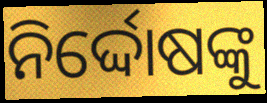
ନିର୍ଦ୍ଦୋଷଙ୍କୁ